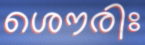
ശൌരിഃ